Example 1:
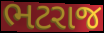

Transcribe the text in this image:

ભટરાજ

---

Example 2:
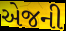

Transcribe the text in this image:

એજની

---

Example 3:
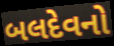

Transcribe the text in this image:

બલદેવનો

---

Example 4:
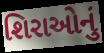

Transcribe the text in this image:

શિરાઓનું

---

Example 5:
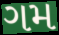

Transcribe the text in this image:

ગમ